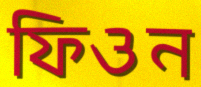
ফিওন